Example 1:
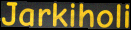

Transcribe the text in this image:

Jarkiholi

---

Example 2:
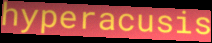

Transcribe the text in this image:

hyperacusis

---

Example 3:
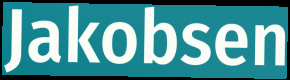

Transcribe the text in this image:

Jakobsen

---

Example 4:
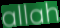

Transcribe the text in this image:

allah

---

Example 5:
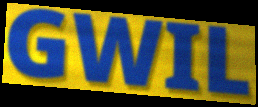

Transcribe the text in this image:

GWIL